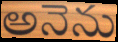
అనెను